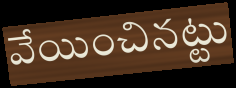
వేయించినట్టు